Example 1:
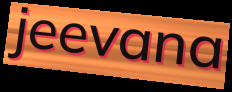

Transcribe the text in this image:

jeevana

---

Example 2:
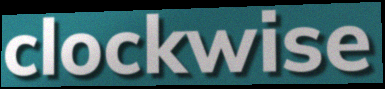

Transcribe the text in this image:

clockwise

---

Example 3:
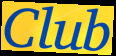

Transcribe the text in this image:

Club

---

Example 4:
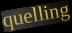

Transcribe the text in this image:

quelling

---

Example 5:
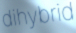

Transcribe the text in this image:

dihybrid